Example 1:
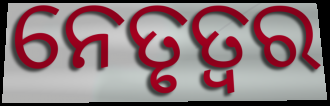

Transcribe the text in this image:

ନେତୃତ୍ବର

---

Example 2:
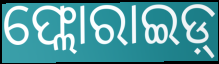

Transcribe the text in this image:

ଫ୍ଲୋରାଇଡ଼୍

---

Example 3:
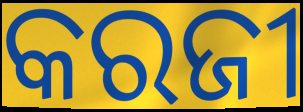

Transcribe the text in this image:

କରଜୀ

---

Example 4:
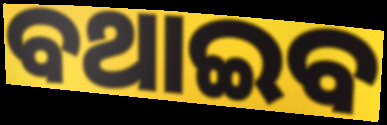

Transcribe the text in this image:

ବଥାଇବ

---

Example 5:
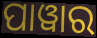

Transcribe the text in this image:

ପାୱାର